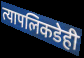
त्यापलिकडेही